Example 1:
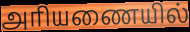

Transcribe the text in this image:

அரியணையில்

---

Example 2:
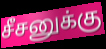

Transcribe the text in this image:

சீசனுக்கு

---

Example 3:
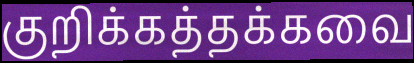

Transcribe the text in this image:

குறிக்கத்தக்கவை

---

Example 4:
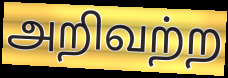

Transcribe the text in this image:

அறிவற்ற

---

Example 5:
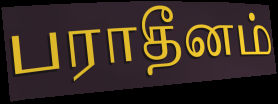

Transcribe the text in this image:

பராதீனம்